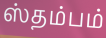
ஸ்தம்பம்